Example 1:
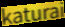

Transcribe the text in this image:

katurai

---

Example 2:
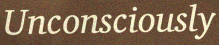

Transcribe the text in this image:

Unconsciously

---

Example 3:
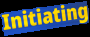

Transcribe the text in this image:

Initiating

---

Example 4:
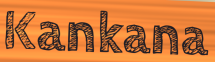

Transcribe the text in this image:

Kankana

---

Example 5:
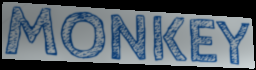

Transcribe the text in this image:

MONKEY